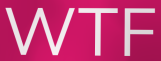
WTF